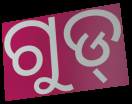
ଗୁଡ୍